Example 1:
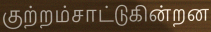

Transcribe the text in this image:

குற்றம்சாட்டுகின்றன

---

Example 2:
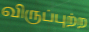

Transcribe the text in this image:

விருப்புற்ற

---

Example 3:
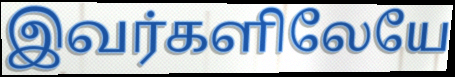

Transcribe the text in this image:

இவர்களிலேயே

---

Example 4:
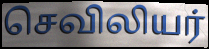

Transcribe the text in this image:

செவிலியர்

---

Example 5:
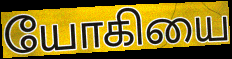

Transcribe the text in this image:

யோகியை